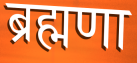
ब्रह्मणा